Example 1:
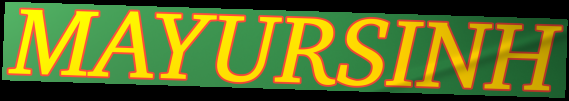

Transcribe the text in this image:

MAYURSINH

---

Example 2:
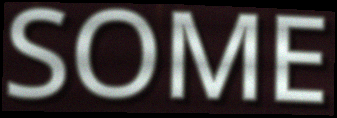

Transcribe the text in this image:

SOME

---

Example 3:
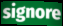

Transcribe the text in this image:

signore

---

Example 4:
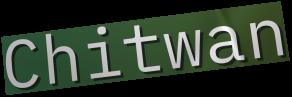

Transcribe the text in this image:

Chitwan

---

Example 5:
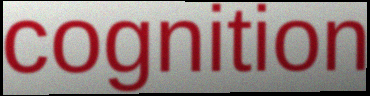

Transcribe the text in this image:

cognition